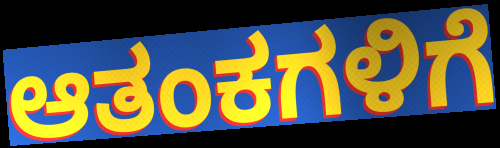
ಆತಂಕಗಳಿಗೆ